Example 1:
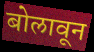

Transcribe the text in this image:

बोलावून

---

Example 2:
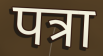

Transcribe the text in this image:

पत्रा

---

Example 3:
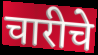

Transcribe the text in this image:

चारीचे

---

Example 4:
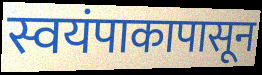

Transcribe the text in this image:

स्वयंपाकापासून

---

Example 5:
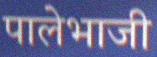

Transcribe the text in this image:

पालेभाजी